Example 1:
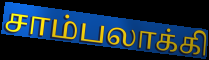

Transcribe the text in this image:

சாம்பலாக்கி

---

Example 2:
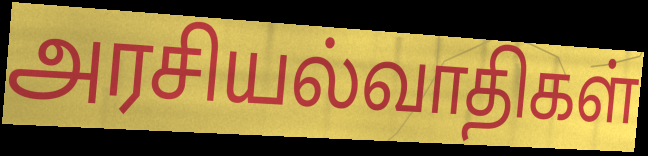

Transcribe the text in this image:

அரசியல்வாதிகள்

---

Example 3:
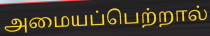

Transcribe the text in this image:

அமையப்பெற்றால்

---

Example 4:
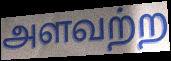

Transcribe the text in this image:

அளவற்ற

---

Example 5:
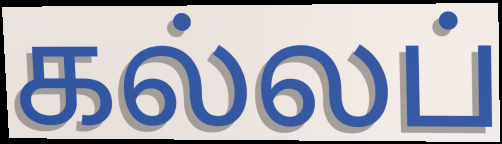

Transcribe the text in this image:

கல்லப்